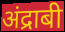
अंद्राबी